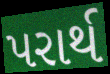
પરાર્થ